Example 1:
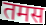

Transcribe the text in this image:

तमस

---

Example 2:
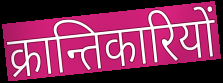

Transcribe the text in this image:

क्रान्तिकारियों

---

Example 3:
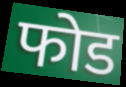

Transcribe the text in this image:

फोड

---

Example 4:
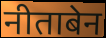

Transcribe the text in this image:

नीताबेन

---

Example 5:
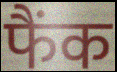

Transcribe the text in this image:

फैंक